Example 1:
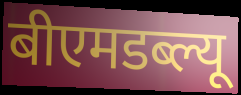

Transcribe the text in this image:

बीएमडब्ल्यू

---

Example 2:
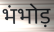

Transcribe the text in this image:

भंभोड़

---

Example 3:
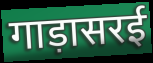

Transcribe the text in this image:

गाड़ासरई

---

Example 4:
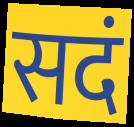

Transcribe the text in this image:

सदं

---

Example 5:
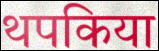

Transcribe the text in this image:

थपकिया